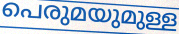
പെരുമയുമുള്ള